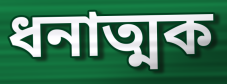
ধনাত্মক